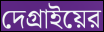
দেগ্রাইয়ের